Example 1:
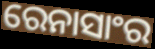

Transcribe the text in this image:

ରେନାସାଂର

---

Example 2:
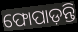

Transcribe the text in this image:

ଫୋପାଡ଼ନ୍ତି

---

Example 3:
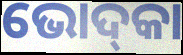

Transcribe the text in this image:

ଭୋଦ୍‌କା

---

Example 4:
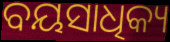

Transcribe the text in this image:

ବୟସାଧିକ୍ୟ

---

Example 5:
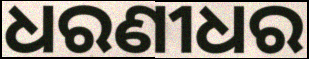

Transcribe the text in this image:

ଧରଣୀଧର